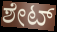
ಶೇಟ್